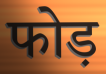
फोड़